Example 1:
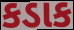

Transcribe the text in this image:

કડાક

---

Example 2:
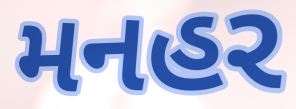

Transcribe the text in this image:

મનહર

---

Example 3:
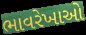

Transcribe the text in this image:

ભાવરેખાઓ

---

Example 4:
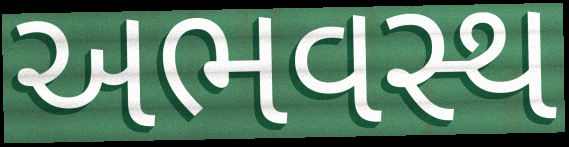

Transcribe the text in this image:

અભવસ્થ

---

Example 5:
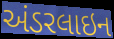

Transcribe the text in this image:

અંડરલાઇન